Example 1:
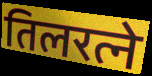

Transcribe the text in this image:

तिलरत्ने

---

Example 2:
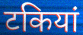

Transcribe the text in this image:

टकियां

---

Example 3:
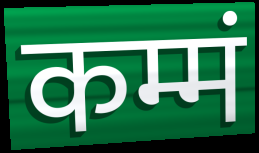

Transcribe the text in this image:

कम्मं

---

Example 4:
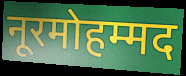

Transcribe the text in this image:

नूरमोहम्मद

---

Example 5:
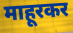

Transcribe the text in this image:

माहूरकर